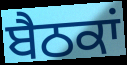
ਬੈਠਕਾਂ